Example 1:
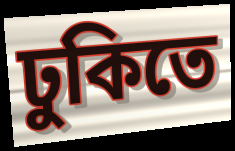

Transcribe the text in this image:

ঢুকিতে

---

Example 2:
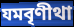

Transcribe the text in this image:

যমবৃণীথা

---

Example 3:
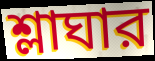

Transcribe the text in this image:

শ্লাঘার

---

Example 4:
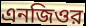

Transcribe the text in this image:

এনজিওর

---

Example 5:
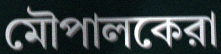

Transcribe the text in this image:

মৌপালকেরা